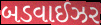
બડવાઈઝર